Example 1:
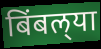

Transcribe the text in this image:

बिंबल्या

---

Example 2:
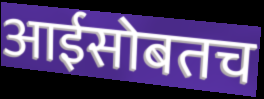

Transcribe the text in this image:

आईसोबतच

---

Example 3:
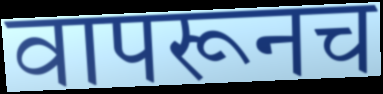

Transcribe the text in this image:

वापरूनच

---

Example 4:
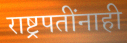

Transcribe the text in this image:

राष्ट्रपतींनाही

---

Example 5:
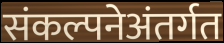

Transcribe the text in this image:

संकल्पनेअंतर्गत